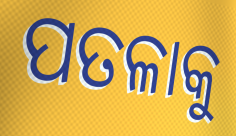
ପତଳାକୁ